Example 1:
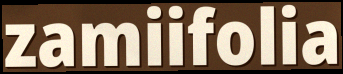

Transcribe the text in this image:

zamiifolia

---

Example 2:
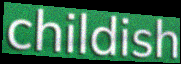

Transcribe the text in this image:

childish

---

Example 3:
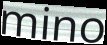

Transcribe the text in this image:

mino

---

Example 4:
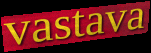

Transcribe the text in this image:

vastava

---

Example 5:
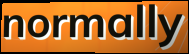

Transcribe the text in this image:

normally